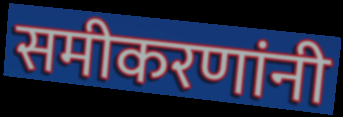
समीकरणांनी